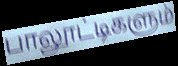
பாலூட்டிகளும்